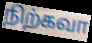
நிற்கவா